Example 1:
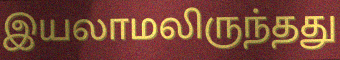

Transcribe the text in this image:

இயலாமலிருந்தது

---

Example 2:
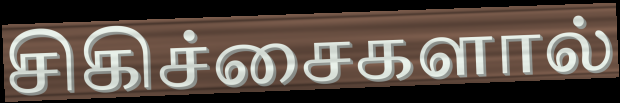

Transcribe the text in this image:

சிகிச்சைகளால்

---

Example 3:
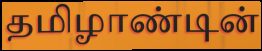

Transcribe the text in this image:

தமிழாண்டின்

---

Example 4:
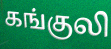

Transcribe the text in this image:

கங்குலி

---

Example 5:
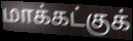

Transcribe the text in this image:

மாக்கட்குக்